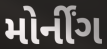
મોર્નીંગ